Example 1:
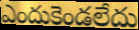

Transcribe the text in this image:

ఎందుకెండలేదు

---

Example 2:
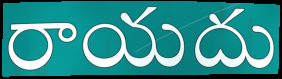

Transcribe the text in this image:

రాయదు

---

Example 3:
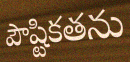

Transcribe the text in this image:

పౌష్టికతను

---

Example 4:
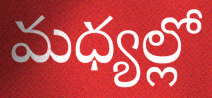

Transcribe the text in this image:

మధ్యల్లో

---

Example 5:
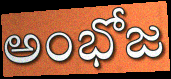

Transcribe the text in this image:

అంభోజ